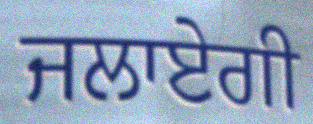
ਜਲਾਏਗੀ